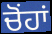
ਚੋਂਹਾਂ